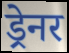
ड्रेनर